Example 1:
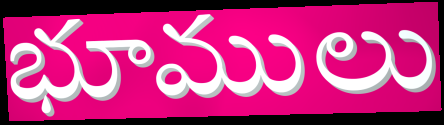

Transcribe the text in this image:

భూములు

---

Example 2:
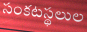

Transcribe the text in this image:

సంకటస్థలుల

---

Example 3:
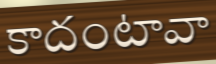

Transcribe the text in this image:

కాదంటావా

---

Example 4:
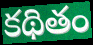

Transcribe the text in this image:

కథితం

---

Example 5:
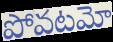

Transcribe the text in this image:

పోవటమో